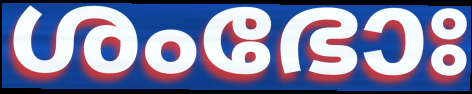
ശംഭോഃ